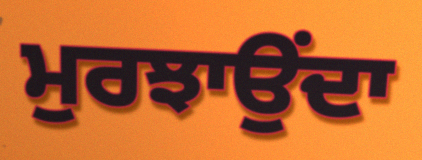
ਮੁਰਝਾਉਂਦਾ